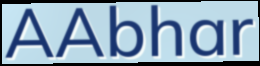
AAbhar